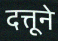
दत्तूने